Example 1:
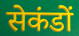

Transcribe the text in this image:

सेकंडों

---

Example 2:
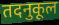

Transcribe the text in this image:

तदनुकूल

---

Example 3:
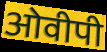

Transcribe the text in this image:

ओवीपी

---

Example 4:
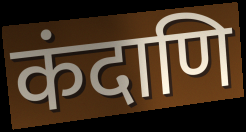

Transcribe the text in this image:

कंदाणि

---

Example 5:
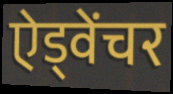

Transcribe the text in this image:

ऐड्वेंचर